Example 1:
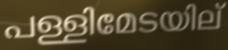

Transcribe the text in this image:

പള്ളിമേടയില്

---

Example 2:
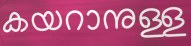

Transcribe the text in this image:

കയറാനുള്ള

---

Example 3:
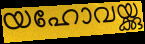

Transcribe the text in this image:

യഹോവയ്ക്കു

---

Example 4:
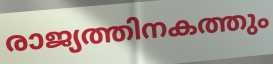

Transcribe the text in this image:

രാജ്യത്തിനകത്തും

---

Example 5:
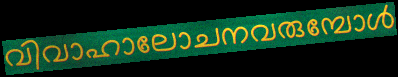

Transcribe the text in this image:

വിവാഹാലോചനവരുമ്പോൾ